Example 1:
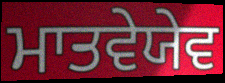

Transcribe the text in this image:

ਮਾਤਵੇਯੇਵ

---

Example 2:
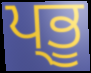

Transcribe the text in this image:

ਪ੍ਭੂ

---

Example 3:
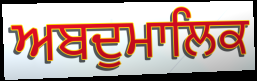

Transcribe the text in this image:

ਅਬਦੁਮਾਲਿਕ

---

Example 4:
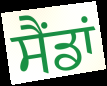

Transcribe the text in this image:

ਸੈਂਡਾਂ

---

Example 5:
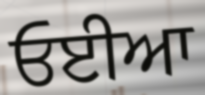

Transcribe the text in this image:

ਓਈਆ